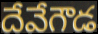
దేవేగౌడ